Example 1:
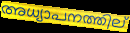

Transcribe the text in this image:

അധ്യാപനത്തില്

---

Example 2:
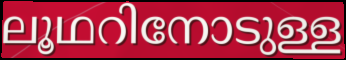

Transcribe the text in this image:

ലൂഥറിനോടുള്ള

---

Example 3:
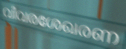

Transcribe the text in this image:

വിവരശേഖരണ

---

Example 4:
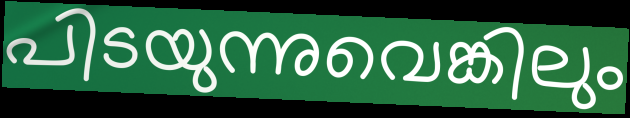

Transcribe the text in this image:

പിടയുന്നുവെങ്കിലും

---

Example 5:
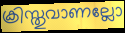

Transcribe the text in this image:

ക്രിസ്തുവാണല്ലോ